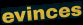
evinces